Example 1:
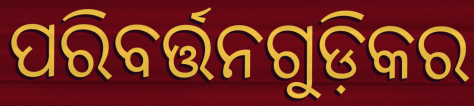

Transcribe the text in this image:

ପରିବର୍ତ୍ତନଗୁଡ଼ିକର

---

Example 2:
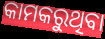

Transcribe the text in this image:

କାମକରୁଥିବା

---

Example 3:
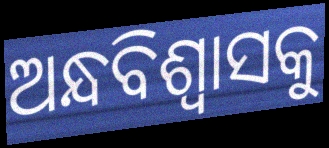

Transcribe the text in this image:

ଅନ୍ଧବିଶ୍ୱାସକୁ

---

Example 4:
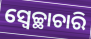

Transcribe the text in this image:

ସ୍ଵେଚ୍ଛାଚାରି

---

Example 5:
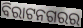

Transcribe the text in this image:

ବିରାଟନଗରର